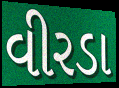
વીરડા